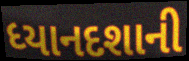
ધ્યાનદશાની